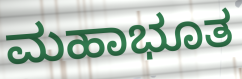
ಮಹಾಭೂತ